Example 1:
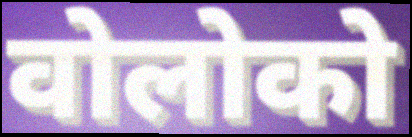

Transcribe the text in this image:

वोलोको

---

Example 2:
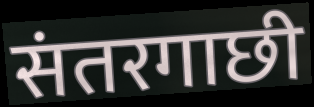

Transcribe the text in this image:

संतरगाछी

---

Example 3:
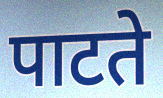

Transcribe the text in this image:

पाटते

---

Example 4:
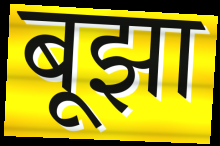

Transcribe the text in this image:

बूझा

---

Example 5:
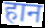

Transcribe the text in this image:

हान